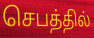
செபத்தில்